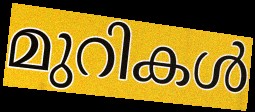
മുറികൾ